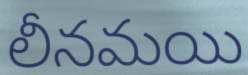
లీనమయి